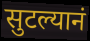
सुटल्यानं